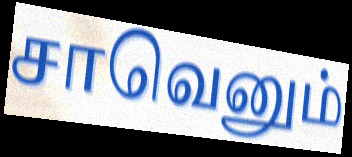
சாவெனும்